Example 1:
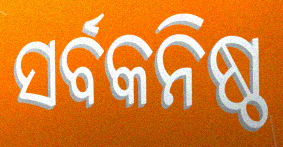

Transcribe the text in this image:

ସର୍ବକନିଷ୍ଠ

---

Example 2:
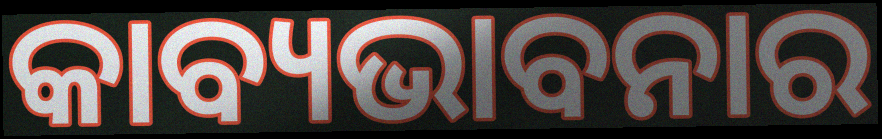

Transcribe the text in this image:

କାବ୍ୟଭାବନାର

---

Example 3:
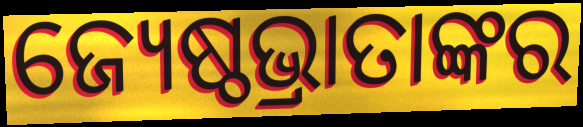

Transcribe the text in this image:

ଜ୍ୟେଷ୍ଠଭ୍ରାତାଙ୍କର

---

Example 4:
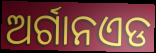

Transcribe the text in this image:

ଅର୍ଗାନଏଡ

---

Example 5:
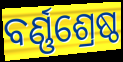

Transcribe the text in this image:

ବର୍ଣ୍ଣଶ୍ରେଷ୍ଠ